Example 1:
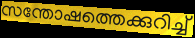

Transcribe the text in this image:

സന്തോഷത്തെക്കുറിച്ച്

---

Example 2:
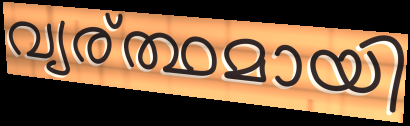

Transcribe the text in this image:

വ്യര്ത്ഥമായി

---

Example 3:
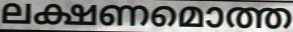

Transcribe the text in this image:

ലക്ഷണമൊത്ത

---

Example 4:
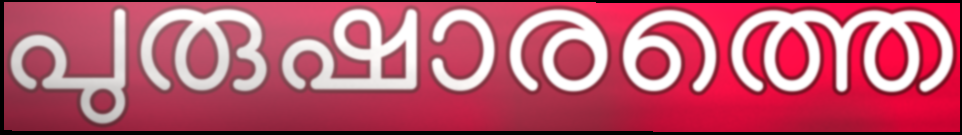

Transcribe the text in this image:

പുരുഷാരത്തെ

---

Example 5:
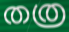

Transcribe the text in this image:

തത്ര